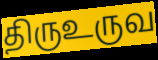
திருஉருவ